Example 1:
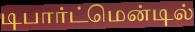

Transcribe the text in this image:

டிபார்ட்மென்டில்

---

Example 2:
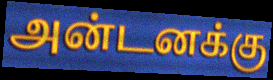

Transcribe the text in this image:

அன்டனக்கு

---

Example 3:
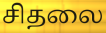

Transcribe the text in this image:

சிதலை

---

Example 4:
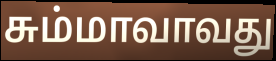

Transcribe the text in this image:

சும்மாவாவது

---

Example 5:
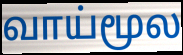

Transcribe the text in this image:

வாய்மூல